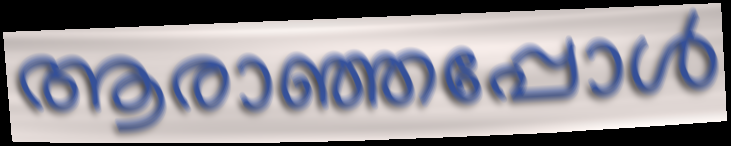
ആരാഞ്ഞപ്പോൾ